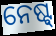
ନେଷ୍ଟ୍